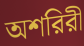
অশরিরী